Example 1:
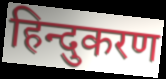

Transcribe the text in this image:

हिन्दुकरण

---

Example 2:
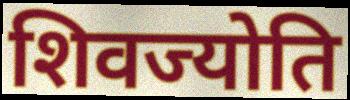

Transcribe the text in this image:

शिवज्योति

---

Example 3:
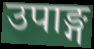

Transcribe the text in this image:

उपाङ्ग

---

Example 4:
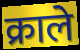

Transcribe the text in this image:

क्राले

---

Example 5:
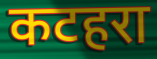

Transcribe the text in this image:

कटहरा